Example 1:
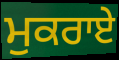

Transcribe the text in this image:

ਮੁਕਰਾਏ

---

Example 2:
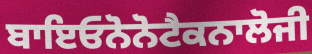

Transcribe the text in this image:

ਬਾਇਓਨੋਨੋਟੈਕਨਾਲੋਜੀ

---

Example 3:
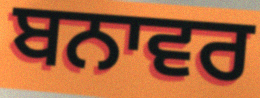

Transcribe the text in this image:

ਬਨਾਵਰ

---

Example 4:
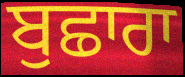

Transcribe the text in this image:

ਬੁਛਾਰਾ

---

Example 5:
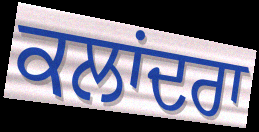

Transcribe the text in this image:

ਕਲਾਂਦਰਾ